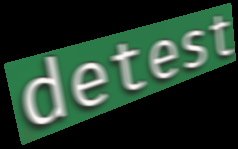
detest